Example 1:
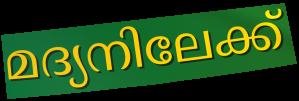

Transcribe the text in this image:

മദ്യനിലേക്ക്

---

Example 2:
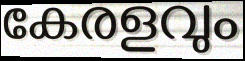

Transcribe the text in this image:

കേരളവും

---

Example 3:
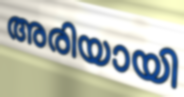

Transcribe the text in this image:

അരിയായി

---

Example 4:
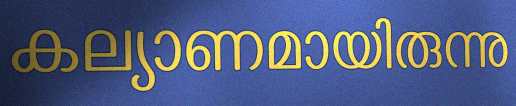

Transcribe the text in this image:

കല്യാണമായിരുന്നു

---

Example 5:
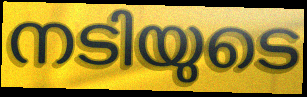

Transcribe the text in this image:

നടിയുടെ